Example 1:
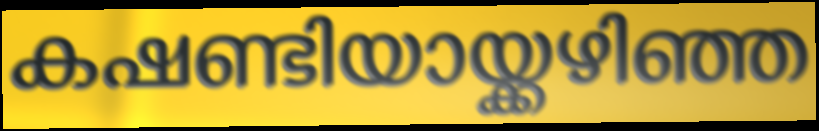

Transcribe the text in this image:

കഷണ്ടിയായ്ക്കഴിഞ്ഞ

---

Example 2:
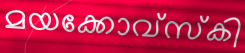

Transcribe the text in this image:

മയക്കോവ്സ്കി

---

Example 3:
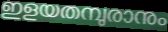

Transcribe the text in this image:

ഇളയതമ്പുരാനും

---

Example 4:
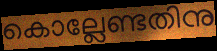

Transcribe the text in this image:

കൊല്ലേണ്ടതിനു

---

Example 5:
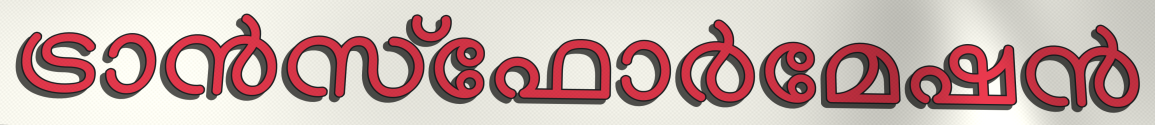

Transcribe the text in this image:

ട്രാൻസ്ഫോർമേഷൻ